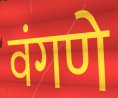
वंगणे